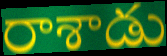
రాశాడు